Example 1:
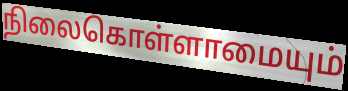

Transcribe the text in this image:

நிலைகொள்ளாமையும்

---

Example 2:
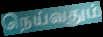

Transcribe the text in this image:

நெய்வதும்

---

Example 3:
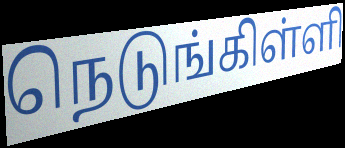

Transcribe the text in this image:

நெடுங்கிள்ளி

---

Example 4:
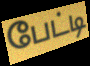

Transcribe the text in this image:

பேட்டி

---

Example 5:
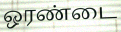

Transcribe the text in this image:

ஒரண்டை